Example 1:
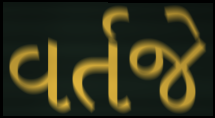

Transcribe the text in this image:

વર્તજે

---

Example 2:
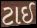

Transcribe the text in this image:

ટાઈ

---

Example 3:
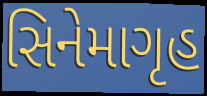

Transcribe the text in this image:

સિનેમાગૃહ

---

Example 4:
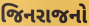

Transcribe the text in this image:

જિનરાજનો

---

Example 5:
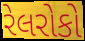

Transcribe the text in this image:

રેલરોકો